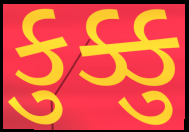
કુક્કુ